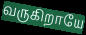
வருகிறாயே